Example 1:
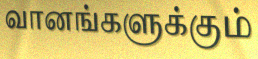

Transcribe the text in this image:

வானங்களுக்கும்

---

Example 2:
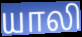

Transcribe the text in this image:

யாலி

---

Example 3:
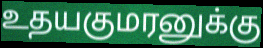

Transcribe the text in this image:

உதயகுமரனுக்கு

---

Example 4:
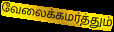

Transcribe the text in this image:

வேலைக்கமர்த்தும்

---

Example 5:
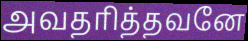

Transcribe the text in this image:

அவதரித்தவனே